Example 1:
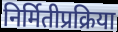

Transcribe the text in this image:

निर्मितीप्रक्रिया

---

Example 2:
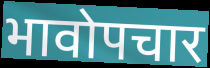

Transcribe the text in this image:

भावोपचार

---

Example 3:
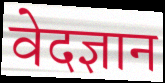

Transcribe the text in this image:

वेदज्ञान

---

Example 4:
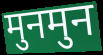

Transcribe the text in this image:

मुनमुन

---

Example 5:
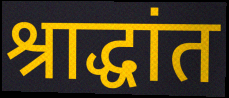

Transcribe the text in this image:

श्राद्धांत